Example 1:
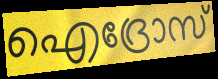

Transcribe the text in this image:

ഐദ്രോസ്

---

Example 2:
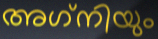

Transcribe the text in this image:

അഗ്‌നിയും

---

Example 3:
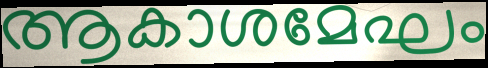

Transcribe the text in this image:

ആകാശമേഘം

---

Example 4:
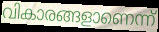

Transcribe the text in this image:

വികാരങ്ങളാണെന്ന്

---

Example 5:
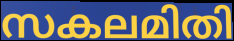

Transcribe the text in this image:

സകലമിതി